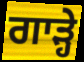
ਗਾੜ੍ਹੇ